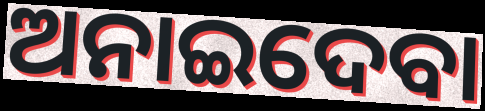
ଅନାଇଦେବା